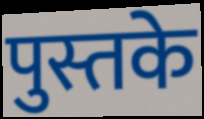
पुस्‍तके